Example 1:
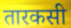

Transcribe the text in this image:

तारकसी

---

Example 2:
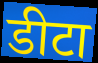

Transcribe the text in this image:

डीटा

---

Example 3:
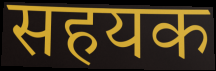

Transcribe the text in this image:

सहयक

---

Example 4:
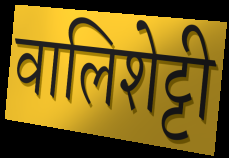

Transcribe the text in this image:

वालिशेट्टी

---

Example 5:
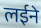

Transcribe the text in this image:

लईने